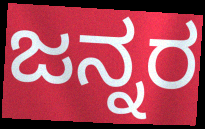
ಜನ್ನರ